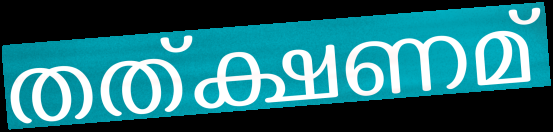
തത്ക്ഷണമ്